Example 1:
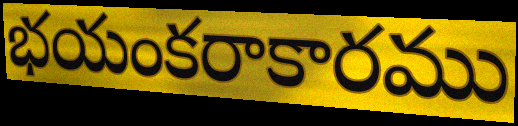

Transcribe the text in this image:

భయంకరాకారము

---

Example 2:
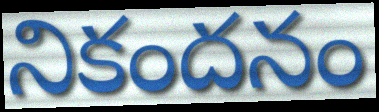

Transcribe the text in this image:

నికందనం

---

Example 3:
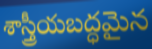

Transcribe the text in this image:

శాస్త్రీయబద్ధమైన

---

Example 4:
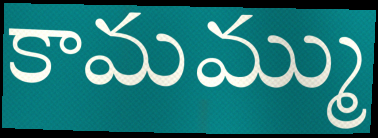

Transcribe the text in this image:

కామమ్ము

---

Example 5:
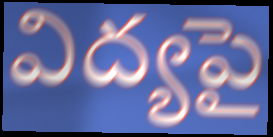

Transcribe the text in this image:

విద్యపై